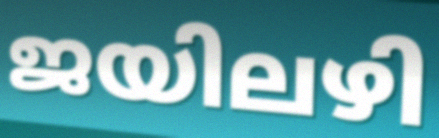
ജയിലഴി